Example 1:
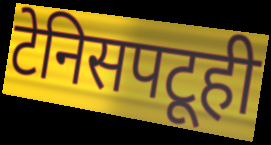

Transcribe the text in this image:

टेनिसपटूही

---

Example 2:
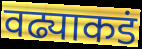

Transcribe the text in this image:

वढ्याकडं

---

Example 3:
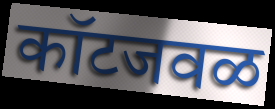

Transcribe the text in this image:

कॉटजवळ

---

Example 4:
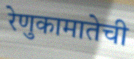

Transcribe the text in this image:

रेणुकामातेची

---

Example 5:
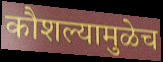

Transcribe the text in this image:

कौशल्यामुळेच